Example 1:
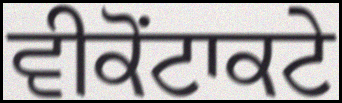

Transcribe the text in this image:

ਵੀਕੋਂਟਾਕਟੇ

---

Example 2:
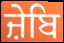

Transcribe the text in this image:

ਜ਼ੇਬਿ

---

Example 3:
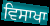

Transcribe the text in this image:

ਵਿਸਾਖਾ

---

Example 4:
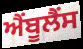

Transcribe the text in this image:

ਐਂਬੂਲੈਂਸ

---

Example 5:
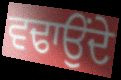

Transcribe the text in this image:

ਵਢਾਉਂਦੇ